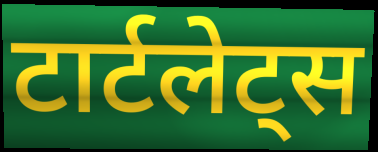
टार्टलेट्स